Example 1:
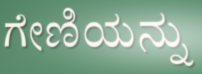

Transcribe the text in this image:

ಗೇಣಿಯನ್ನು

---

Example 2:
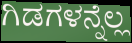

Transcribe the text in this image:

ಗಿಡಗಳನ್ನೆಲ್ಲ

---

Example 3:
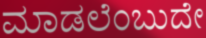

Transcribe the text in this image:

ಮಾಡಲೆಂಬುದೇ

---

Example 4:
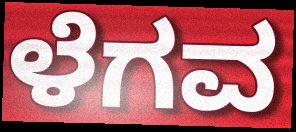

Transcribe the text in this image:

ಳೆಗವ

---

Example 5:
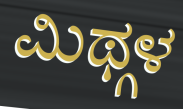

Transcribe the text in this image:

ಮಿಥ್ಗಳ